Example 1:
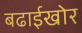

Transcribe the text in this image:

बढाईखोर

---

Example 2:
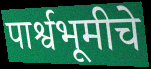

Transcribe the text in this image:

पार्श्वभूमीचे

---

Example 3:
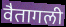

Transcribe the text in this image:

वैतागली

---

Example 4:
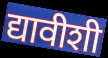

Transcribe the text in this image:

द्यावीशी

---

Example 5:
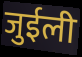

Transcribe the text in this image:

जुईली